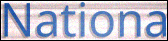
Nationa